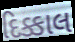
દિક્કાલ